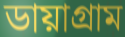
ডায়াগ্রাম